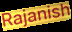
Rajanish